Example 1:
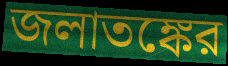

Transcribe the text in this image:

জলাতঙ্কের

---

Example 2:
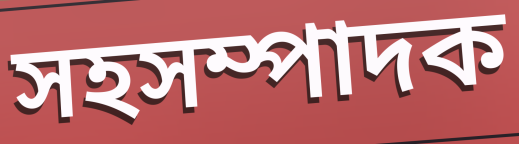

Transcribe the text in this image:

সহসম্পাদক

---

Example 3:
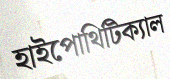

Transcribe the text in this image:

হাইপোথিটিক্যাল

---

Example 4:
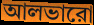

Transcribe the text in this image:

আলভারো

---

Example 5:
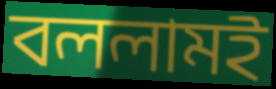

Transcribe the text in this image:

বললামই